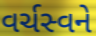
વર્ચસ્વને